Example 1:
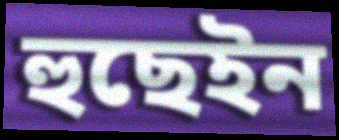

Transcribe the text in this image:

হুছেইন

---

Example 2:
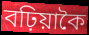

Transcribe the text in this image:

বঢ়িয়াকৈ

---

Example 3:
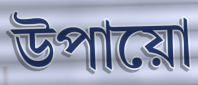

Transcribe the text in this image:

উপায়ো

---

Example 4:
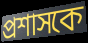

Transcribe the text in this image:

প্ৰশাসকে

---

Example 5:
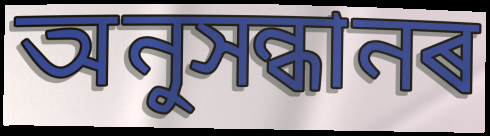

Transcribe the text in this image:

অনুসন্ধানৰ